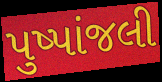
પુષ્પાંજલી